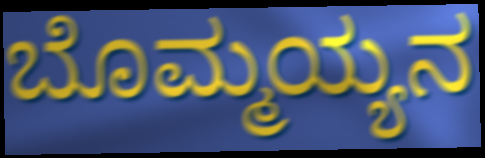
ಬೊಮ್ಮಯ್ಯನ